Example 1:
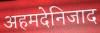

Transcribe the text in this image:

अहमदेनिजाद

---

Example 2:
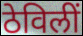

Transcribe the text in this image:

ठेविलीं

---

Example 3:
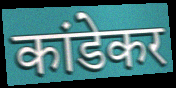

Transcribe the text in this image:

कांडेकर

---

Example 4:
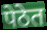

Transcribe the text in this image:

पेठेत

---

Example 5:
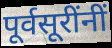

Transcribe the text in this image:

पूर्वसूरींनीं